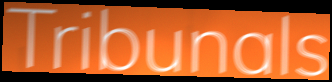
Tribunals